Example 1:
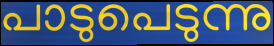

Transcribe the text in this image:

പാടുപെടുന്നു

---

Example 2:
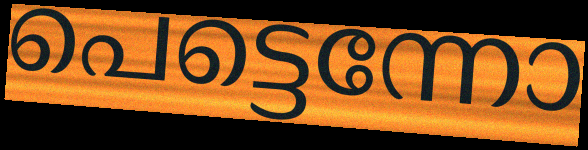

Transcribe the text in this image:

പെട്ടെന്നോ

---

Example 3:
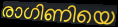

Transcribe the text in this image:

രാഗിണിയെ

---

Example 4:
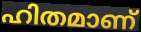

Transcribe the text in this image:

ഹിതമാണ്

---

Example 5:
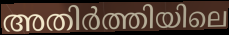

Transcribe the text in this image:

അതിർത്തിയിലെ